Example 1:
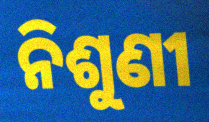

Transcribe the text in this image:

ନିଶୁଣୀ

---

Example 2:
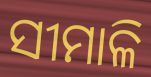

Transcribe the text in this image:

ସୀମାଳି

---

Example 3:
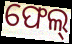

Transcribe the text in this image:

ଫେଲ୍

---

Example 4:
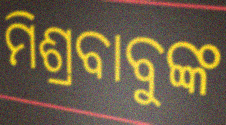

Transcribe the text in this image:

ମିଶ୍ରବାବୁଙ୍କ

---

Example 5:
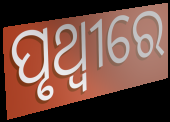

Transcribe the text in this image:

ପୃଥ୍ୱୀରେ